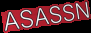
ASASSN